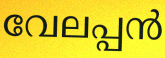
വേലപ്പൻ